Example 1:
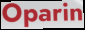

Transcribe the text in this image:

Oparin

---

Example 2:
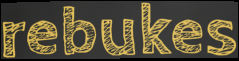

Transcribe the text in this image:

rebukes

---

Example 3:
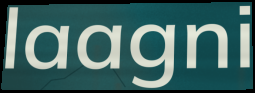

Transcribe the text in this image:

laagni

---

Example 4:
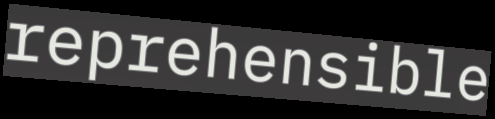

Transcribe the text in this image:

reprehensible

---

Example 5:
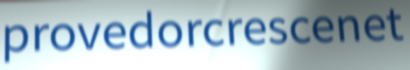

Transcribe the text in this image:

provedorcrescenet